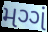
મગ્ગં